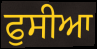
ਫੁਸੀਆ